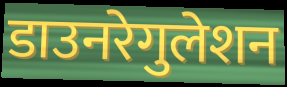
डाउनरेगुलेशन